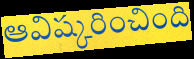
ఆవిష్కరించింది